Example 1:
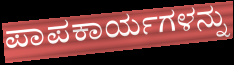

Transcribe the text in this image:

ಪಾಪಕಾರ್ಯಗಳನ್ನು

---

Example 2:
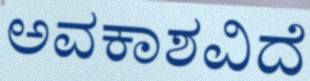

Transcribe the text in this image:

ಅವಕಾಶವಿದೆ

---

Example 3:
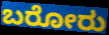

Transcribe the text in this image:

ಬರೋರು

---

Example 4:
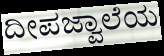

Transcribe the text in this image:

ದೀಪಜ್ವಾಲೆಯ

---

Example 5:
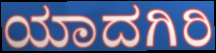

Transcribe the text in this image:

ಯಾದಗಿರಿ